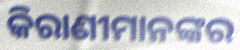
କିରାଣୀମାନଙ୍କର